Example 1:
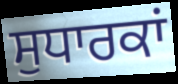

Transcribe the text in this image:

ਸੁਧਾਰਕਾਂ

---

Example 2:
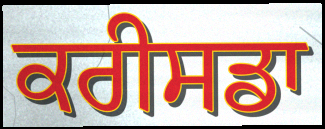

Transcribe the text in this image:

ਕਰੀਸਡਾ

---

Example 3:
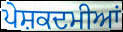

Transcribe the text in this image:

ਪੇਸ਼ਕਦਮੀਆਂ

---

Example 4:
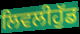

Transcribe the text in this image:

ਲਿਵਲੀਹੁੱਡ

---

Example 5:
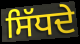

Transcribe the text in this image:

ਸਿੱਧਦੇ